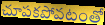
చూపకపోవటంతో